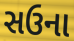
સઉના